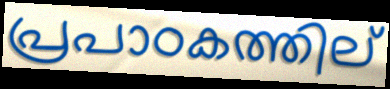
പ്രപാഠകത്തില്